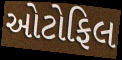
ઓટોફિલ